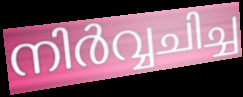
നിർവ്വചിച്ച